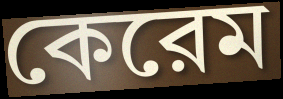
কেরেম